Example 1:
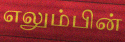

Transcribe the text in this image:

எலும்பின்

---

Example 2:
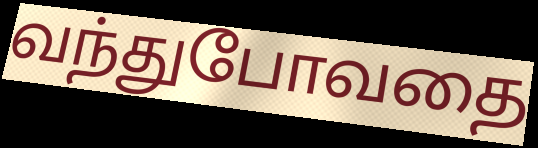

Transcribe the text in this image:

வந்துபோவதை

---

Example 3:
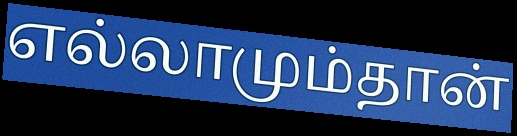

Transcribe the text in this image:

எல்லாமும்தான்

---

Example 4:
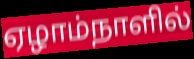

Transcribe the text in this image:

ஏழாம்நாளில்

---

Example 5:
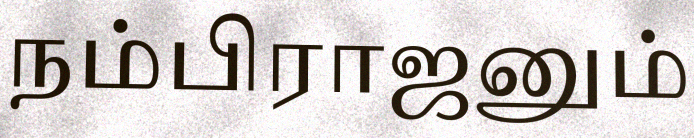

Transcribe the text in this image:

நம்பிராஜனும்